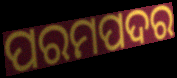
ପରମପଦର